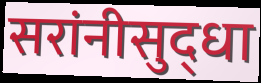
सरांनीसुद्धा